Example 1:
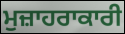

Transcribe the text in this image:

ਮੁਜ਼ਾਹਰਾਕਾਰੀ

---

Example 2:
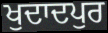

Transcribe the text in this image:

ਖੁਦਾਦਪੁਰ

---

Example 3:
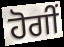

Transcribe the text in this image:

ਹੋਗੀਂ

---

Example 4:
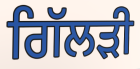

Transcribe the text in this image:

ਗਿੱਲੜੀ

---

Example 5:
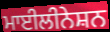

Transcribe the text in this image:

ਮਾਈਲੀਨੇਸ਼ਨ